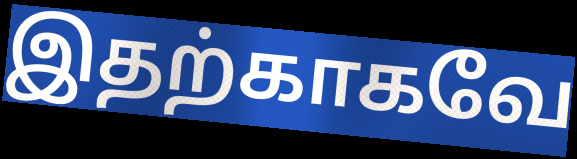
இதற்காகவே